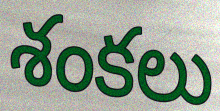
శంకలు